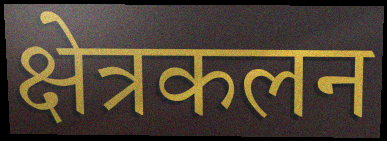
क्षेत्रकलन